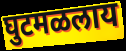
घुटमळलाय